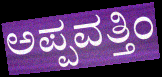
ಅಪ್ಪವತ್ತಿಂ